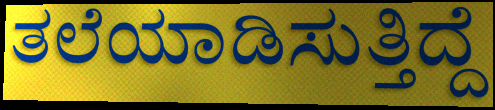
ತಲೆಯಾಡಿಸುತ್ತಿದ್ದೆ